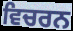
ਵਿਚਰਨ